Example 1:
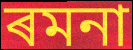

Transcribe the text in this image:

ৰমনা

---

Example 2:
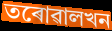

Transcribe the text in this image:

তৰোৱালখন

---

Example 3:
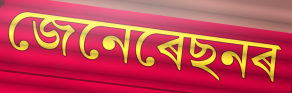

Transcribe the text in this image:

জেনেৰেছনৰ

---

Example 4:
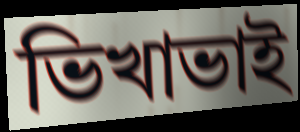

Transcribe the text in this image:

ভিখাভাই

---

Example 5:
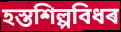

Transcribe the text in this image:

হস্তশিল্পবিধৰ